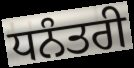
ਧਨੰਤਰੀ